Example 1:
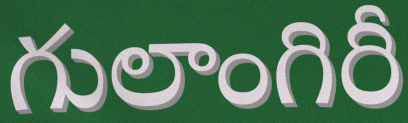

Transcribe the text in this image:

గులాంగిరీ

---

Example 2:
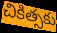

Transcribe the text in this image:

చికిత్సకు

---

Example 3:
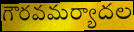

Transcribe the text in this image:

గౌరవమర్యాదల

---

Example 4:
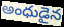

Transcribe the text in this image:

అంధుడైన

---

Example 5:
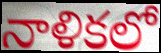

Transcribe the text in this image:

నాళికలో